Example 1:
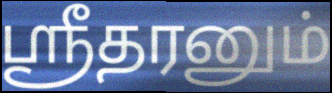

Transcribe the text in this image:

ஸ்ரீதரனும்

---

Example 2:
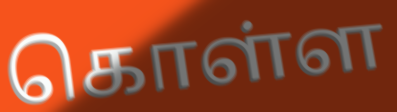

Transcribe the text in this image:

கொள்ள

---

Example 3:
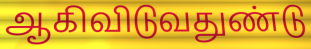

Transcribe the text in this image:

ஆகிவிடுவதுண்டு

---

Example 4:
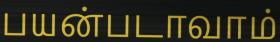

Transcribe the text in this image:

பயன்படாவாம்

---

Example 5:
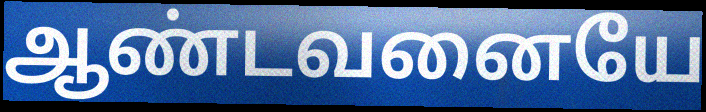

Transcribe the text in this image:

ஆண்டவனையே